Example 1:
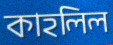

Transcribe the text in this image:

কাহলিল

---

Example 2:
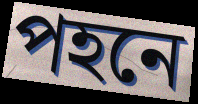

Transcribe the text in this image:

পহনে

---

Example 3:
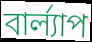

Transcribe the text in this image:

বার্ল্যাপ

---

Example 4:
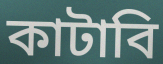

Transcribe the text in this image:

কাটাবি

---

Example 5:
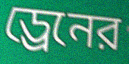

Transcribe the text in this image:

ড্রেনের